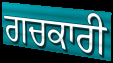
ਗਚਕਾਰੀ